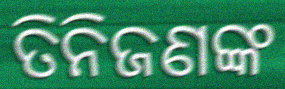
ତିନିଜଣଙ୍କ